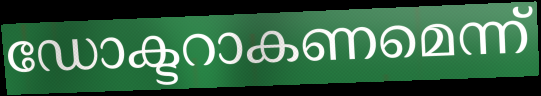
ഡോക്ടറാകണമെന്ന്